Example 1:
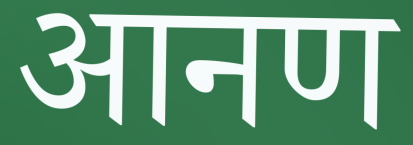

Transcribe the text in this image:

आनण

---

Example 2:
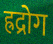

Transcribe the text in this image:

ह्रद्रोग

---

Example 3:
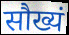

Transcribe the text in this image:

सौख्यं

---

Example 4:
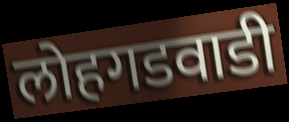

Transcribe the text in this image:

लोहगडवाडी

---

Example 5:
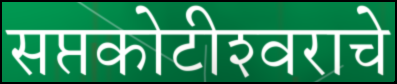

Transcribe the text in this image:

सप्तकोटीश्वराचे